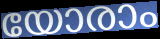
യോരാം